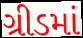
ગ્રીડમાં